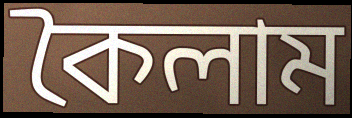
কৈলাম